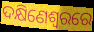
ଦକ୍ଷିଣେଶ୍ୱରରେ